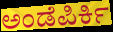
ಅಂಡೆಪಿರ್ಕಿ